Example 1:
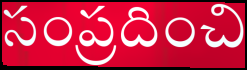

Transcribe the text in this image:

సంప్రదించి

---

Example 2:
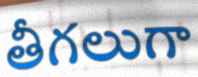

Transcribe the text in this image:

తీగలుగా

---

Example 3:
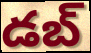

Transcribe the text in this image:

డబ్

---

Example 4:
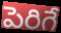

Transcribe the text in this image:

పెరిగే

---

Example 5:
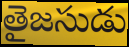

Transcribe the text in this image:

తైజసుడు